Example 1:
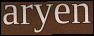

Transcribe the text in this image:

aryen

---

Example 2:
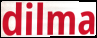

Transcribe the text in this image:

dilma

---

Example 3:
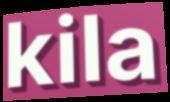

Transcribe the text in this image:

kila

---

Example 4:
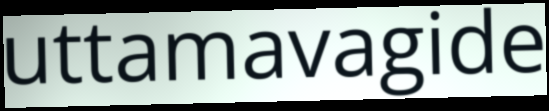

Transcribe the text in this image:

uttamavagide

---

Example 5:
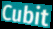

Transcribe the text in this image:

Cubit